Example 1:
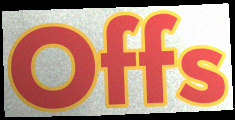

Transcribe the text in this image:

Offs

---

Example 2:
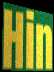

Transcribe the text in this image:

Hin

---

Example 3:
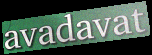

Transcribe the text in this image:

avadavat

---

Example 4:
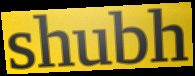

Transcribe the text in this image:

shubh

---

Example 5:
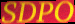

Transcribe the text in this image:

SDPO